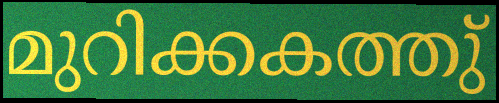
മുറിക്കകത്തു്